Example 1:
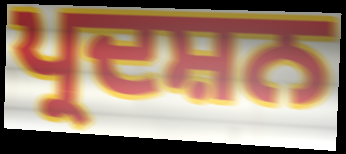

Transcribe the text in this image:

ਪ੍ਰਦਸ਼ਨ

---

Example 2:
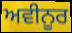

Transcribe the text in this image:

ਅਵੀਨੂਰ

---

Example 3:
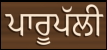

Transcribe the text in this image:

ਪਾਰੂਪੱਲੀ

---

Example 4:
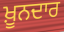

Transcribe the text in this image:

ਖ਼ੂਨਦਾਰ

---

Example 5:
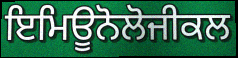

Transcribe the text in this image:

ਇਮਿਊਨੋਲੋਜੀਕਲ